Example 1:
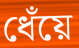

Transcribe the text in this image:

ধেঁয়ে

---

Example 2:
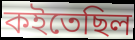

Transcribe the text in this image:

কইতেছিল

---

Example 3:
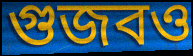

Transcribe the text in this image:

গুজবও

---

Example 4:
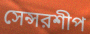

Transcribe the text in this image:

সেন্সরশীপ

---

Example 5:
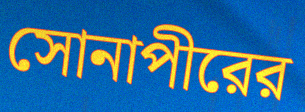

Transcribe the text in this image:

সোনাপীরের